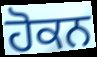
ਹੋਕਨ